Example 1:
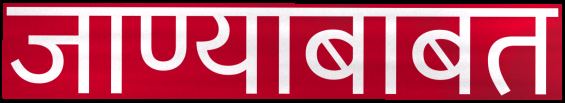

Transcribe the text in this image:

जाण्याबाबत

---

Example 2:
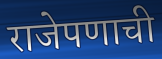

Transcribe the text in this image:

राजेपणाची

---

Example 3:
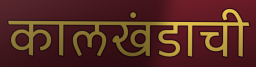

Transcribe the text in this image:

कालखंडाची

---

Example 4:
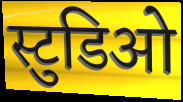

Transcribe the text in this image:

स्टुडिओ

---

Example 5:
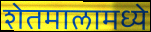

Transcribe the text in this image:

शेतमालामध्ये